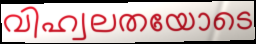
വിഹ്വലതയോടെ